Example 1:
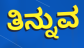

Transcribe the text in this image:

ತಿನ್ನುವ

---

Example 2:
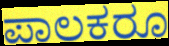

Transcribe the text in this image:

ಪಾಲಕರೂ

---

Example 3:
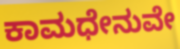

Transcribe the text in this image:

ಕಾಮಧೇನುವೇ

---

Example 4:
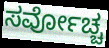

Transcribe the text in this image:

ಸರ್ವೋಚ್ಚ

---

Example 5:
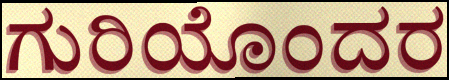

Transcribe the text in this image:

ಗುರಿಯೊಂದರ